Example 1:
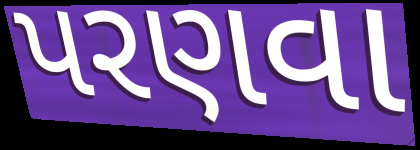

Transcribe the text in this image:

પરણવા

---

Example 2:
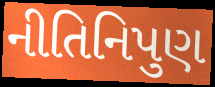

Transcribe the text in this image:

નીતિનિપુણ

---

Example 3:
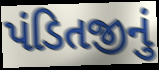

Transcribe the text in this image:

પંડિતજીનું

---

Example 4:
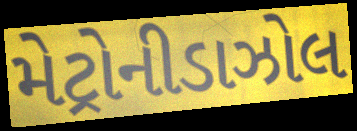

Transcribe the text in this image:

મેટ્રોનીડાઝોલ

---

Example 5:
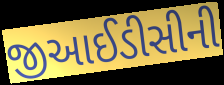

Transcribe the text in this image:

જીઆઈડીસીની